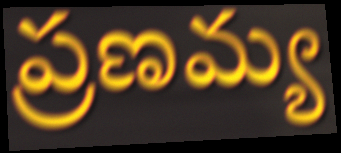
ప్రణమ్య